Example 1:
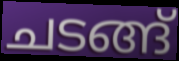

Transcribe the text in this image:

ചടങ്ങ്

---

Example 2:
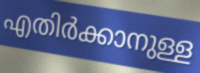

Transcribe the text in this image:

എതിർക്കാനുള്ള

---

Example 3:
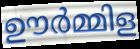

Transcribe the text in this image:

ഊർമ്മിള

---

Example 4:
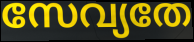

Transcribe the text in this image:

സേവ്യതേ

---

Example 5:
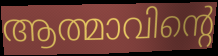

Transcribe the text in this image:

ആത്മാവിന്റെ